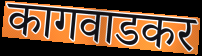
कागवाडकर